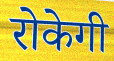
रोकेगी